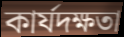
কাৰ্যদক্ষতা